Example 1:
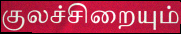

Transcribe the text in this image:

குலச்சிறையும்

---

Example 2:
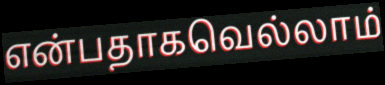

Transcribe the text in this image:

என்பதாகவெல்லாம்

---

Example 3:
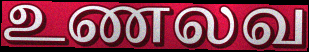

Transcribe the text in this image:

உணலவ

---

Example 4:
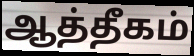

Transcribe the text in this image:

ஆத்தீகம்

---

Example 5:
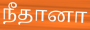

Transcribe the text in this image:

நீதானா